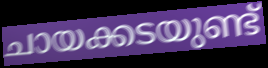
ചായക്കടയുണ്ട്